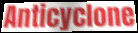
Anticyclone